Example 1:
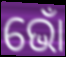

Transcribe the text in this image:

ଭୋଁ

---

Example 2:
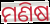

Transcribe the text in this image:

ମଣିଷ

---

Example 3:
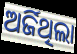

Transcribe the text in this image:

ଅର୍ଜିଥିଲା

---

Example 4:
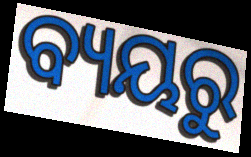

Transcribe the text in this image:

ବ୍ୟୟରୁ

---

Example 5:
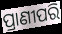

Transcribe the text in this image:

ପ୍ରାଣୀପରି